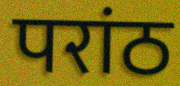
परांठ